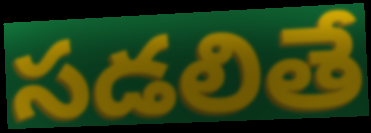
సడలితే